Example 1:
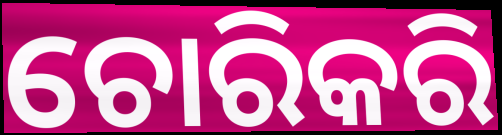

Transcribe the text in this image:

ଚୋରିକରି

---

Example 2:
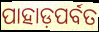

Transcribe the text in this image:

ପାହାଡ଼ପର୍ବତ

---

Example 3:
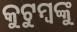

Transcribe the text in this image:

କୁଟୁମ୍ବଙ୍କୁ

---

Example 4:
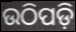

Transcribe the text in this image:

ଉଠିପଡ଼ି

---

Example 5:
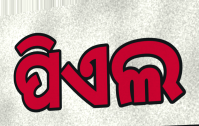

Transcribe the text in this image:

ପିଏଲ